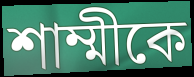
শাম্মীকে